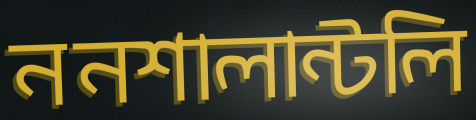
ননশালান্টলি